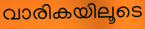
വാരികയിലൂടെ